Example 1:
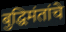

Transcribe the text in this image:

बुद्धिमंतांचे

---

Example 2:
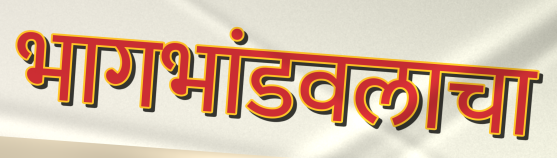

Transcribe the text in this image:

भागभांडवलाचा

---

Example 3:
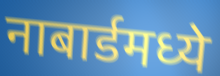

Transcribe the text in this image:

नाबार्डमध्ये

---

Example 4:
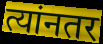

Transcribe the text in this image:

त्यांनतर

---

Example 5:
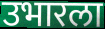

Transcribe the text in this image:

उभारला